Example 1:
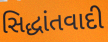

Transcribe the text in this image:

સિદ્ધાંતવાદી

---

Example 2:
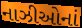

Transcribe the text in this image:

નાઝીઓનાં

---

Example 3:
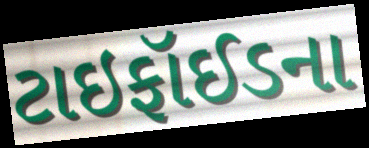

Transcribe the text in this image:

ટાઇફૉઈડના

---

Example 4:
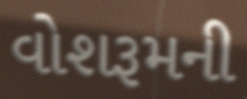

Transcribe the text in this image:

વોશરૂમની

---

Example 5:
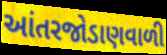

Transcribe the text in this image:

આંતરજોડાણવાળી